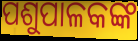
ପଶୁପାଳକଙ୍କ